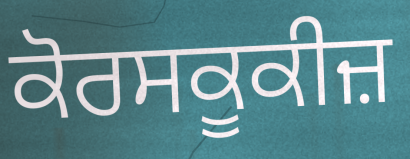
ਕੋਰਸਕੂਕੀਜ਼